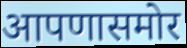
आपणासमोर